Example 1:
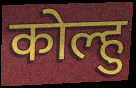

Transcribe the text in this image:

कोल्हु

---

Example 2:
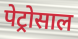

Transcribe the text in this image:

पेट्रोसाल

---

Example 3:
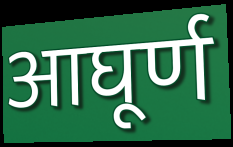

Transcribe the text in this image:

आघूर्ण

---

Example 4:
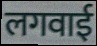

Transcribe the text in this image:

लगवाई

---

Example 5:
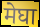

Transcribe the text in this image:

मेघा